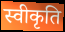
स्वीकृति